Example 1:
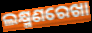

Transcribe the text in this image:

ଲକ୍ଷ୍ମଣରେଖା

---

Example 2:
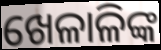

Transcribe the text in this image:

ଖେଳାଳିଙ୍କ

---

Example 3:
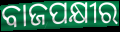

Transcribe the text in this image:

ବାଜପକ୍ଷୀର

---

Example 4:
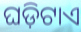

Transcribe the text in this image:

ଘଡ଼ିଟାଏ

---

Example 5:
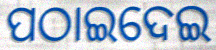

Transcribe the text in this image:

ପଠାଇଦେଇ